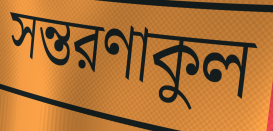
সন্তরণাকুল